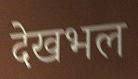
देखभल